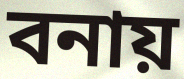
বনায়